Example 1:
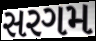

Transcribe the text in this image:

સરગમ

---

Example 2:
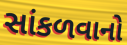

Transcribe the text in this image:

સાંકળવાનો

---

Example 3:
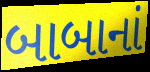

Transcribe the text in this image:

બાબાનાં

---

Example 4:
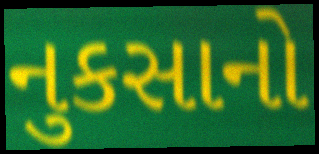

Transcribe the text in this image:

નુકસાનો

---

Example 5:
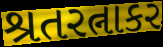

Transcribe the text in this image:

શ્રતરત્નાકર